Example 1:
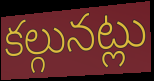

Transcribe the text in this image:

కల్గునట్లు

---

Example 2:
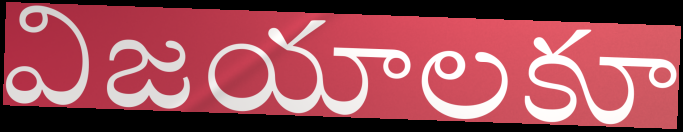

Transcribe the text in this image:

విజయాలకూ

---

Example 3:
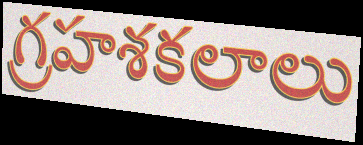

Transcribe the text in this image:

గ్రహశకలాలు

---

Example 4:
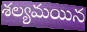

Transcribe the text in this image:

శల్యమయిన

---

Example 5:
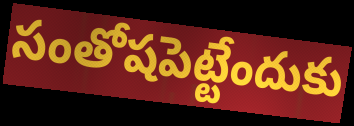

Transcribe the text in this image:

సంతోషపెట్టేందుకు